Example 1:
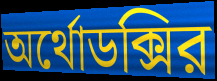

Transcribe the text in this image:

অর্থোডক্সির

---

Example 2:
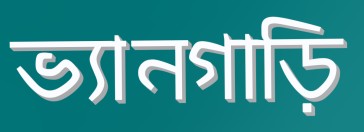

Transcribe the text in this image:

ভ্যানগাড়ি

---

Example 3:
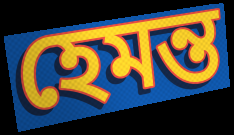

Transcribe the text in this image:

হেমন্ত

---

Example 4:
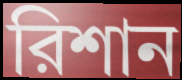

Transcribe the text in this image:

রিশান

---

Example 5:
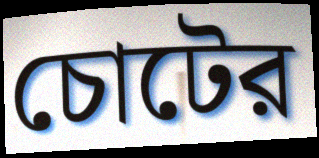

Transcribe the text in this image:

চোটের